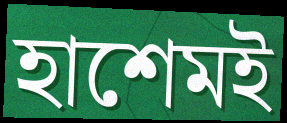
হাশেমই